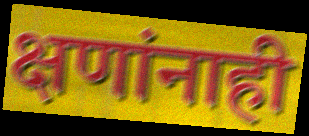
क्षणांनाही